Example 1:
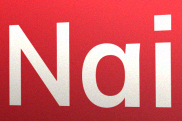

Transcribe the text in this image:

Nai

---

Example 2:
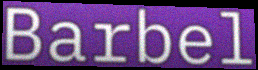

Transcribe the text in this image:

Barbel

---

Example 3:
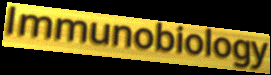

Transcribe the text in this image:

Immunobiology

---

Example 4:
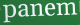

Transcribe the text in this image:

panem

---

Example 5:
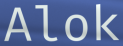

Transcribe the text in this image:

Alok